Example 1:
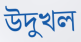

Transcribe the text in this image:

উদুখল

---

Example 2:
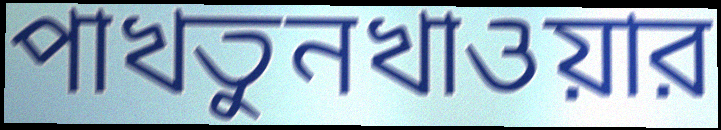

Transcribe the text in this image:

পাখতুনখাওয়ার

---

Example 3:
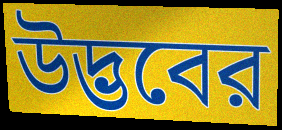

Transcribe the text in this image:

উদ্ভবের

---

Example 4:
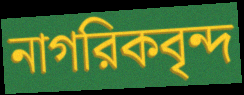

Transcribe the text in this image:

নাগরিকবৃন্দ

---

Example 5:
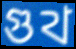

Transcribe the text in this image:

গুথ